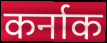
कर्नाक